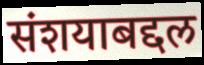
संशयाबद्दल